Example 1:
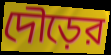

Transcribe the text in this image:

দৌড়ের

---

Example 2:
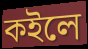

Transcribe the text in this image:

কইলে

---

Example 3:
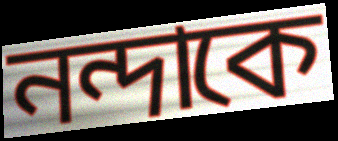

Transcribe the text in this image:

নন্দাকে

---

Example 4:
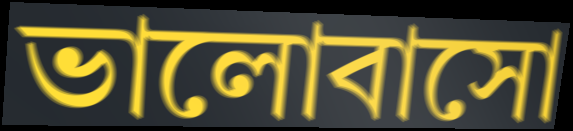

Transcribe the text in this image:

ভালোবাসো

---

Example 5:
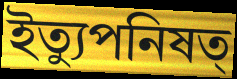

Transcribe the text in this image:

ইত্যুপনিষত্